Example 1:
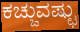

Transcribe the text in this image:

ಕಚ್ಚುವಷ್ಟು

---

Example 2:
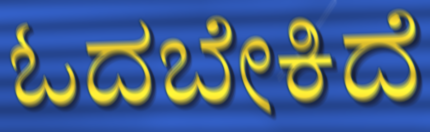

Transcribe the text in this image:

ಓದಬೇಕಿದೆ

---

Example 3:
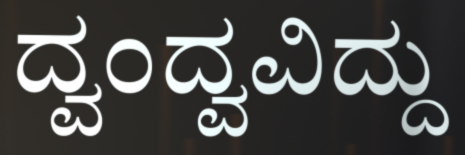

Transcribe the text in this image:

ದ್ವಂದ್ವವಿದ್ದು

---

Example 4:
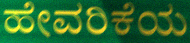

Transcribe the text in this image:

ಹೇವರಿಕೆಯ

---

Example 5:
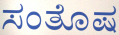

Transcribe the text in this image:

ಸಂತೊಷ